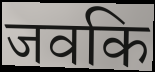
जवकि